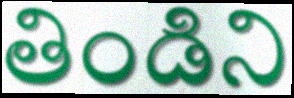
తిండిని